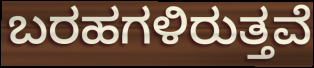
ಬರಹಗಳಿರುತ್ತವೆ